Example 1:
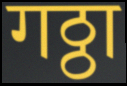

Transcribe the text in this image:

गठ्ठा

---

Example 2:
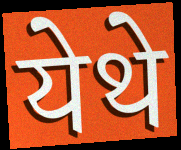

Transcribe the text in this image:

येथे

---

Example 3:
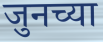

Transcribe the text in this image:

जुनच्या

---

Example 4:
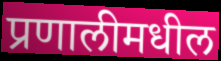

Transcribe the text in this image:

प्रणालीमधील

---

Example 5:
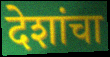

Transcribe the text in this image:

देशांचा